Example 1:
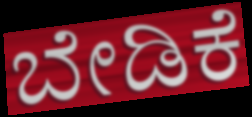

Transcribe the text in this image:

ಬೇಡಿಕೆ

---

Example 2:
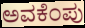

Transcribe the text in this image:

ಅವಕೆಂಪು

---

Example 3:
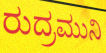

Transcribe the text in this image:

ರುದ್ರಮುನಿ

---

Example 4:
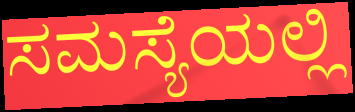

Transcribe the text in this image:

ಸಮಸ್ಯೆಯಲ್ಲಿ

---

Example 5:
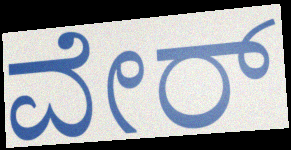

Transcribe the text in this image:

ವೇರ್